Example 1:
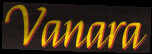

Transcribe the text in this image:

Vanara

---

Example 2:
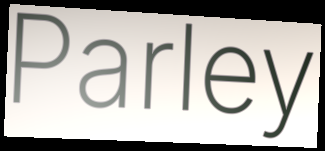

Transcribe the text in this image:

Parley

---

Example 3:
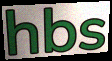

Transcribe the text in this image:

hbs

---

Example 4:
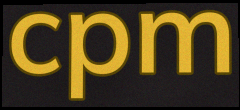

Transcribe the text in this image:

cpm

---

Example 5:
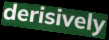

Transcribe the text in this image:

derisively